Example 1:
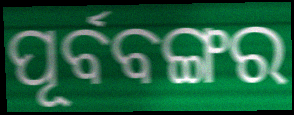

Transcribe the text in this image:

ପୂର୍ବବଙ୍ଗର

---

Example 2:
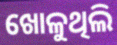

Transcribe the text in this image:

ଖୋଳୁଥିଲି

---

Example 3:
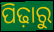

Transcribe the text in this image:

ପିଢ଼ାରୁ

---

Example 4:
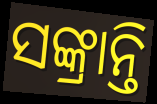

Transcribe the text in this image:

ସଙ୍କ୍ରାନ୍ତି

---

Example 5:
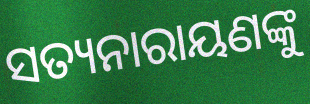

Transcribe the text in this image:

ସତ୍ୟନାରାୟଣଙ୍କୁ